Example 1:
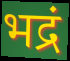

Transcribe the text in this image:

भद्रं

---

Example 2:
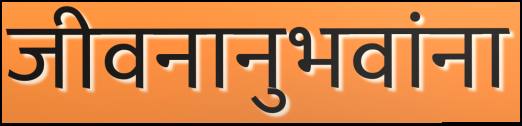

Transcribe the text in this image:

जीवनानुभवांना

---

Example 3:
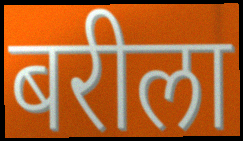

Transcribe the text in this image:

बरीला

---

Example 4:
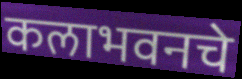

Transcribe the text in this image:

कलाभवनचे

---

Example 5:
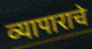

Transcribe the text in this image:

व्यापाराचे